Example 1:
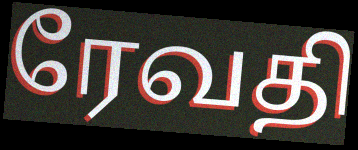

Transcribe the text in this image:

ரேவதி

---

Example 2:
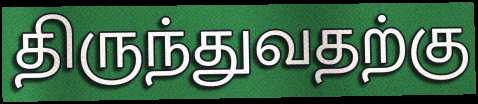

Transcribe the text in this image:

திருந்துவதற்கு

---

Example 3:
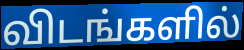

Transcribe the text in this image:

விடங்களில்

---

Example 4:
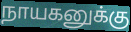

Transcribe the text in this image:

நாயகனுக்கு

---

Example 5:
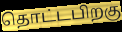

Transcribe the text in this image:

தொட்டபிறகு